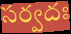
సర్వదః